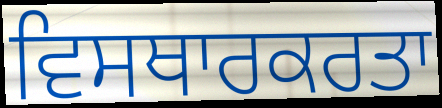
ਵਿਸਥਾਰਕਰਤਾ